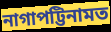
নাগাপট্টিনামত